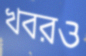
খবরও